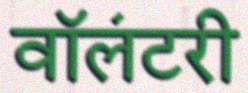
वॉलंटरी